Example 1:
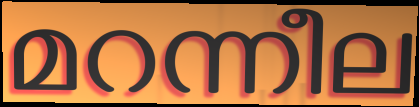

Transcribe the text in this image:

മറന്നീല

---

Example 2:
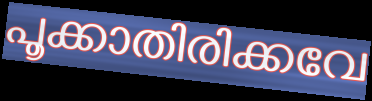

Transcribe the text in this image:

പൂക്കാതിരിക്കവേ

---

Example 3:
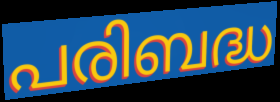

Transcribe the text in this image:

പരിബദ്ധ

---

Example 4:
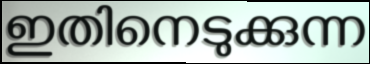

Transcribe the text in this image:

ഇതിനെടുക്കുന്ന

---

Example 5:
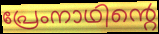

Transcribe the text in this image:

പ്രേംനാഥിന്റെ